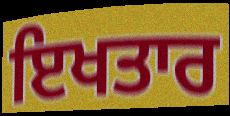
ਇਖਤਾਰ